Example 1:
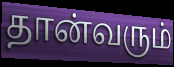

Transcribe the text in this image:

தான்வரும்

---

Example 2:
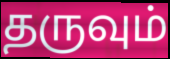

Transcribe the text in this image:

தருவும்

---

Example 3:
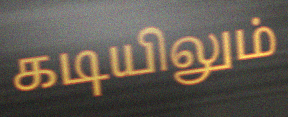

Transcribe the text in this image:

கடியிலும்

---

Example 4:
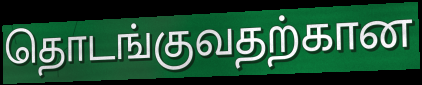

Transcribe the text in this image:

தொடங்குவதற்கான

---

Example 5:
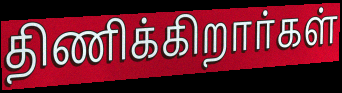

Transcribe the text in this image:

திணிக்கிறார்கள்